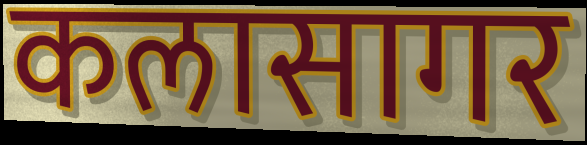
कलासागर